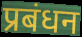
प्रबंधन